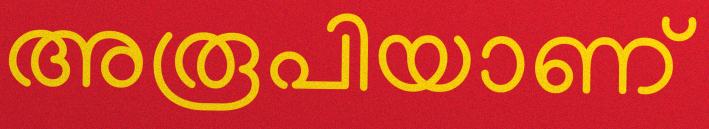
അരൂപിയാണ്